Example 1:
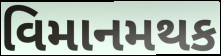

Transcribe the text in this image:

વિમાનમથક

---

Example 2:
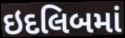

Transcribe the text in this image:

ઇદલિબમાં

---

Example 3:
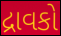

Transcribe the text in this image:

દ્રાવકો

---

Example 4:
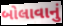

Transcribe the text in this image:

બોલાવાનું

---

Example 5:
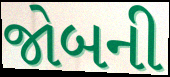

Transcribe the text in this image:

જોબની